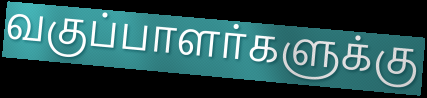
வகுப்பாளர்களுக்கு